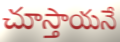
చూస్తాయనే